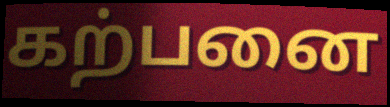
கற்பனை